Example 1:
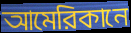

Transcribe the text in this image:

আমেরিকানে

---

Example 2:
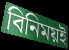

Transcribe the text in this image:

বিনিময়ই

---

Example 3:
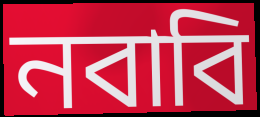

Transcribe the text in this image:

নবাবি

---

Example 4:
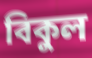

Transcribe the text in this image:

বিকুল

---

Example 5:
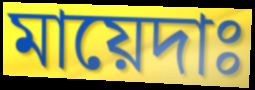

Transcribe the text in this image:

মায়েদাঃ